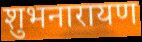
शुभनारायण